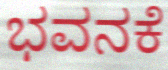
ಭವನಕೆ